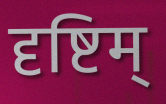
दृष्टिम्